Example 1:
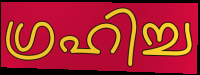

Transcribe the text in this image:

ഗ്രഹിച്ച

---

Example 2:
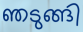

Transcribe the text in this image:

ഞടുങ്ങി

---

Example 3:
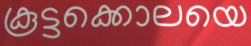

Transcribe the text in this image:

കൂട്ടക്കൊലയെ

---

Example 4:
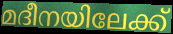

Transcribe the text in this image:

മദീനയിലേക്ക്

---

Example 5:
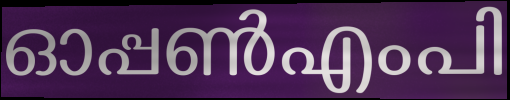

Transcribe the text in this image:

ഓപ്പൺഎംപി